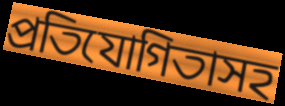
প্রতিযোগিতাসহ